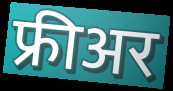
फ्रीअर